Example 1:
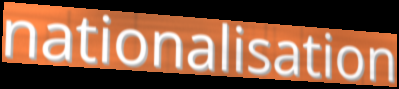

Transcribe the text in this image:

nationalisation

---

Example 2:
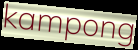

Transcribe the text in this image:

kampong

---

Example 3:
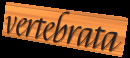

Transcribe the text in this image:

vertebrata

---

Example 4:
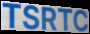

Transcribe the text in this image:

TSRTC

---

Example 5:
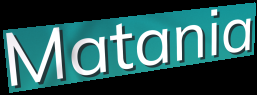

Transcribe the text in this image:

Matania